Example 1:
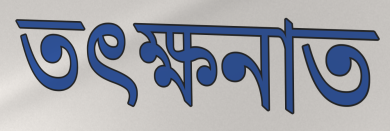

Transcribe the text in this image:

তৎক্ষনাত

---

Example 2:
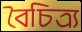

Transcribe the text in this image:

বৈচিত্ৰ্য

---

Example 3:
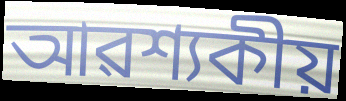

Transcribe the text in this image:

আৱশ্যকীয়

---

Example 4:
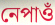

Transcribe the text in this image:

নেপাওঁ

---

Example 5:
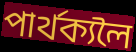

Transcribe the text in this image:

পাৰ্থক্যলৈ